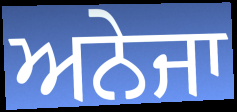
ਅਨੇਜਾ